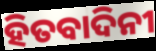
ହିତବାଦିନୀ